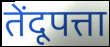
तेंदूपत्ता